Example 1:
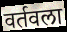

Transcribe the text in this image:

वर्तवला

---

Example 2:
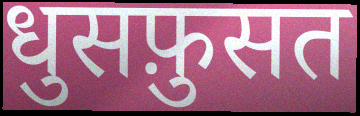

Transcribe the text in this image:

धुसफ़ुसत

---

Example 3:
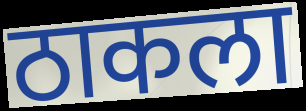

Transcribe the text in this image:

ठाकला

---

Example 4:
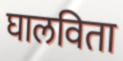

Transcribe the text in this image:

घालविता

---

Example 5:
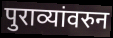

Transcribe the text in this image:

पुराव्यांवरुन